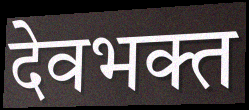
देवभक्त